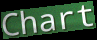
Chart